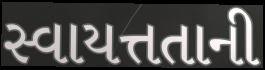
સ્વાયત્તતાની